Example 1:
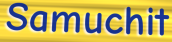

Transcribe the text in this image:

Samuchit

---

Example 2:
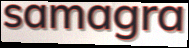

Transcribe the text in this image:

samagra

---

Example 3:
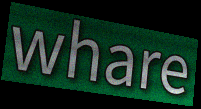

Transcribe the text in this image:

whare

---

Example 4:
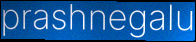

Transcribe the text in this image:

prashnegalu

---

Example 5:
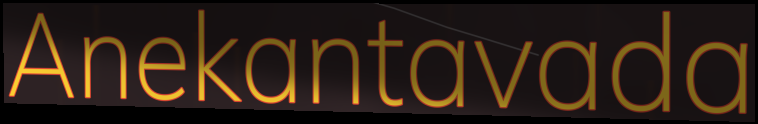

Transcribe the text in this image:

Anekantavada